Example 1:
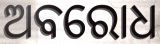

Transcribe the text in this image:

ଅବରୋଧ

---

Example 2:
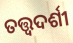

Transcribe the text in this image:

ତତ୍ତ୍ଵଦର୍ଶୀ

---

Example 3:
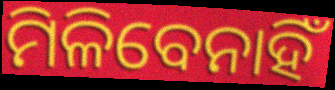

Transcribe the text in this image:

ମିଳିବେନାହିଁ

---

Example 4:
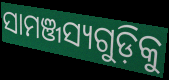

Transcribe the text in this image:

ସାମଞ୍ଜସ୍ୟଗୁଡ଼ିକୁ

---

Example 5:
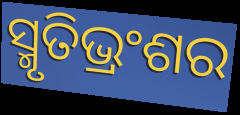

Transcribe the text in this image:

ସ୍ମୃତିଭ୍ରଂଶର